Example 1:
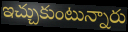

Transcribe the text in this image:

ఇచ్చుకుంటున్నారు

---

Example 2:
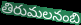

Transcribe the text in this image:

తిరుమలనంబి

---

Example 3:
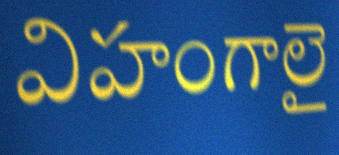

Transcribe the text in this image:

విహంగాలై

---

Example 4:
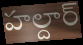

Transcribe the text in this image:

హల్దార్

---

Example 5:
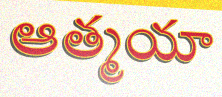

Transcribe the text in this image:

ఆత్మయా